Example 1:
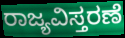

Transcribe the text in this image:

ರಾಜ್ಯವಿಸ್ತರಣೆ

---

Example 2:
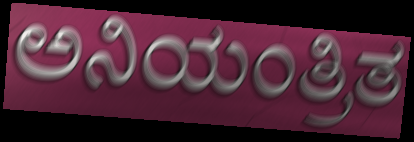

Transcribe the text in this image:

ಅನಿಯಂತ್ರಿತ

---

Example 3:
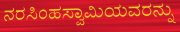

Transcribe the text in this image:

ನರಸಿಂಹಸ್ವಾಮಿಯವರನ್ನು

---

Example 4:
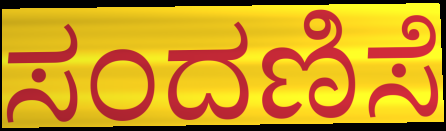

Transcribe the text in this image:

ಸಂದಣಿಸೆ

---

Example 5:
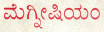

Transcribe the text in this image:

ಮೆಗ್ನೀಷಿಯಂ